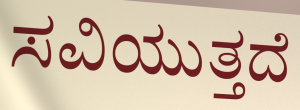
ಸವಿಯುತ್ತದೆ